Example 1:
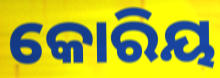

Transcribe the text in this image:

କୋରିୟ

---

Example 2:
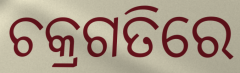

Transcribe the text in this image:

ଚକ୍ରଗତିରେ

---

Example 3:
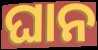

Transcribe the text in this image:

ଘାନ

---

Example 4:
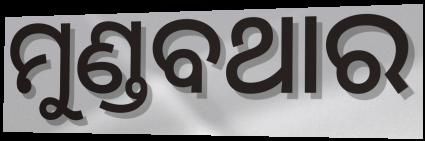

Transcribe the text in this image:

ମୁଣ୍ଡବଥାର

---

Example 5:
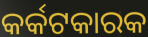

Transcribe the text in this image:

କର୍କଟକାରକ